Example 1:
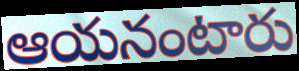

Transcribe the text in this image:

ఆయనంటారు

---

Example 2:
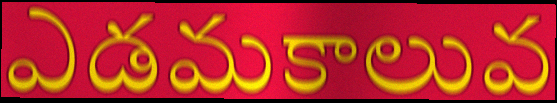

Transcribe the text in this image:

ఎడమకాలువ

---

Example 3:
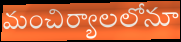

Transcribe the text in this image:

మంచిర్యాలలోనూ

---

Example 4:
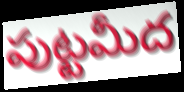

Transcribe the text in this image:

పుట్టమీద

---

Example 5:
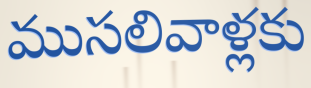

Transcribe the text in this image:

ముసలివాళ్లకు